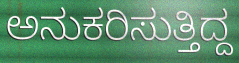
ಅನುಕರಿಸುತ್ತಿದ್ದ